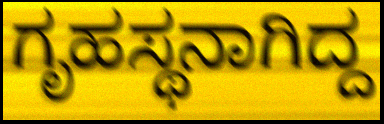
ಗೃಹಸ್ಥನಾಗಿದ್ದ